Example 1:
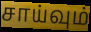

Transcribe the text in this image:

சாய்வும்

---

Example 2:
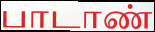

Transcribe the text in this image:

பாடாண்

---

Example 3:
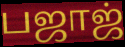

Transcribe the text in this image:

பஜாஜ்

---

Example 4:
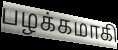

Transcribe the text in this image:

பழக்கமாகி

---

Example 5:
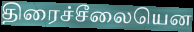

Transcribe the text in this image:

திரைச்சீலையென